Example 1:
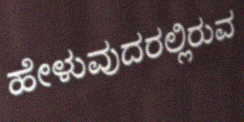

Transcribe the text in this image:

ಹೇಳುವುದರಲ್ಲಿರುವ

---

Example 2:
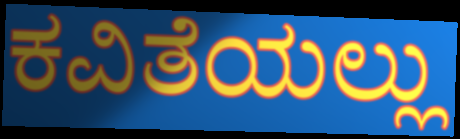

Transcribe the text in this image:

ಕವಿತೆಯಲ್ಲು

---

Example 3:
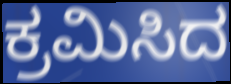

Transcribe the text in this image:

ಕ್ರಮಿಸಿದ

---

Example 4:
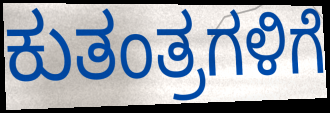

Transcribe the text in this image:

ಕುತಂತ್ರಗಳಿಗೆ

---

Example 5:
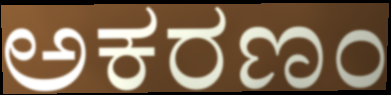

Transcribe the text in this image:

ಅಕರಣಂ